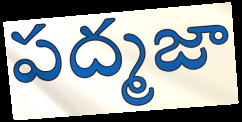
పద్మజా